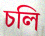
চলি